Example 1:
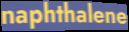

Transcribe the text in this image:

naphthalene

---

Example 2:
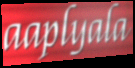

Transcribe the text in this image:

aaplyala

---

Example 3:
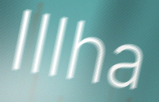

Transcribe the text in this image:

Illha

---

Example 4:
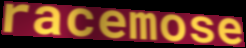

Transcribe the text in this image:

racemose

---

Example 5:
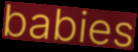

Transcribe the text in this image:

babies